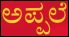
ಅಪ್ಪಲೆ